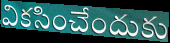
వికసించేందుకు